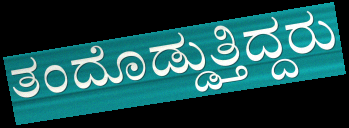
ತಂದೊಡ್ಡುತ್ತಿದ್ದರು